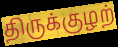
திருக்குழற்